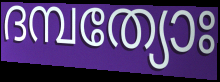
ദമ്പത്യോഃ